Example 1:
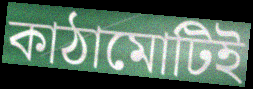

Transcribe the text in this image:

কাঠামোটিই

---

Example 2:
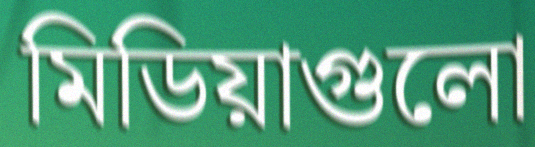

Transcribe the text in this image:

মিডিয়াগুলো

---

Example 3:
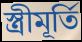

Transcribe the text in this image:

স্ত্রীমূর্তি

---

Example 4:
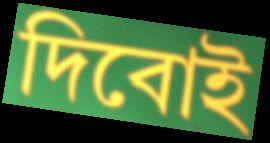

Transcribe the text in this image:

দিবোই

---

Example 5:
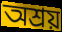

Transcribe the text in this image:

অশ্রয়